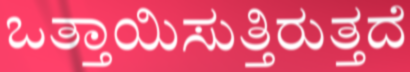
ಒತ್ತಾಯಿಸುತ್ತಿರುತ್ತದೆ